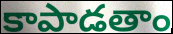
కాపాడతాం